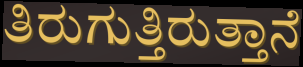
ತಿರುಗುತ್ತಿರುತ್ತಾನೆ